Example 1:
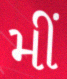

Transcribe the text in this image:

મીં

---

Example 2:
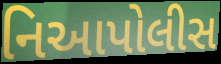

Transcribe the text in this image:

નિઆપોલીસ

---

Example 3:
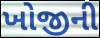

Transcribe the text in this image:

ખોજીની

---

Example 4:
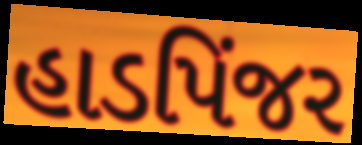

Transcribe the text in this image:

હાડપિંજર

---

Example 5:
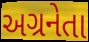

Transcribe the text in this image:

અગ્રનેતા